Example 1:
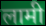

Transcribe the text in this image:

लामी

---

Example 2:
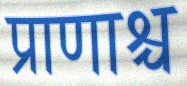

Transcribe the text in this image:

प्राणाश्च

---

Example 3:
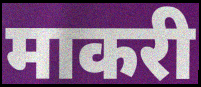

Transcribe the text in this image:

माकरी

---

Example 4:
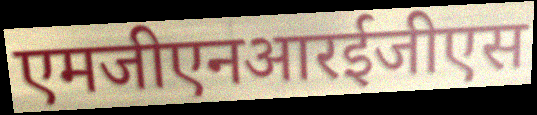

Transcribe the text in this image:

एमजीएनआरईजीएस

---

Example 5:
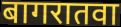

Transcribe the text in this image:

बागरातवा